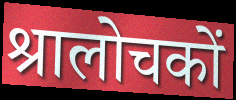
श्रालोचकों